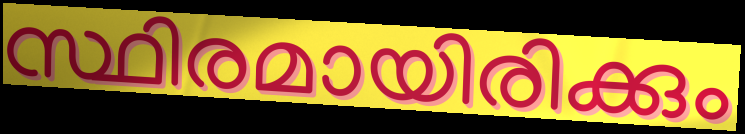
സ്ഥിരമായിരിക്കും